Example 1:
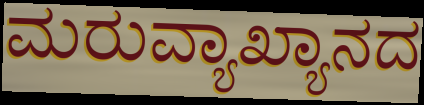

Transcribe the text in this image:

ಮರುವ್ಯಾಖ್ಯಾನದ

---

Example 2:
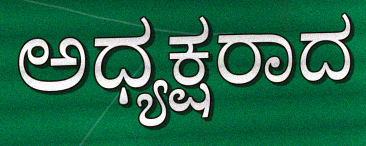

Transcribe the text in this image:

ಅಧ್ಯಕ್ಷರಾದ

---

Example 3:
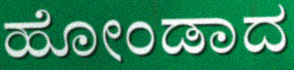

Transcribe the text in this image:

ಹೋಂಡಾದ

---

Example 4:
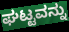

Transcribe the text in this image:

ಘಟ್ಟವನ್ನು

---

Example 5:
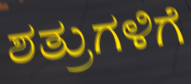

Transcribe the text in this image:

ಶತ್ರುಗಳಿಗೆ